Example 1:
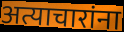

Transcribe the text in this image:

अत्याचारांना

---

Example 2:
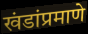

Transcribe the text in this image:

खंडांप्रमाणे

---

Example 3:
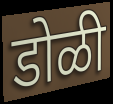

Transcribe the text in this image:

डोळी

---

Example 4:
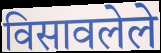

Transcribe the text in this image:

विसावलेले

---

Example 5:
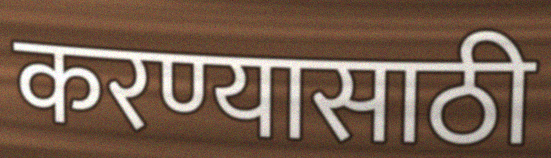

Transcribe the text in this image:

करण्‍यासाठी